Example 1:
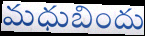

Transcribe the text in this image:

మధుబిందు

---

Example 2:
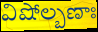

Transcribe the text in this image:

విషోల్బణాః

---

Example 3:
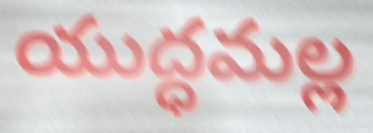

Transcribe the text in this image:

యుద్ధమల్ల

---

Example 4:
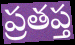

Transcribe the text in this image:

ప్రతప్త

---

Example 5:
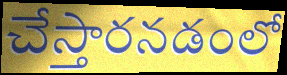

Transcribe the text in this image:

చేస్తారనడంలో